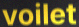
voilet